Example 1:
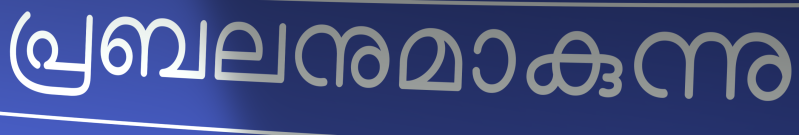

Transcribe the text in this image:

പ്രബലനുമാകുന്നു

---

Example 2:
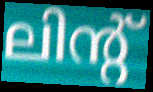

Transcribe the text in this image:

ലിന്റ്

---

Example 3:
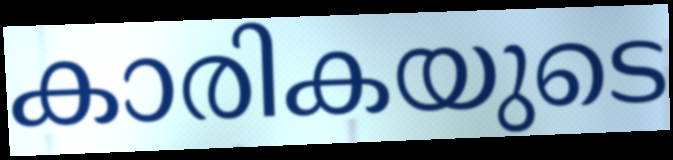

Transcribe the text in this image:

കാരികയുടെ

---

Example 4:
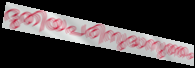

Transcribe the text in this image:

ദുതിയപരിസുദ്ധസുത്തം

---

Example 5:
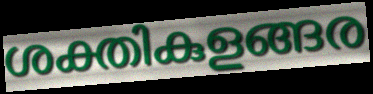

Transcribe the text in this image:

ശക്തികുളങ്ങര